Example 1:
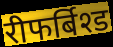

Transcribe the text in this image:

रीफर्बिश्ड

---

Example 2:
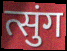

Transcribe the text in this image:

त्सुंग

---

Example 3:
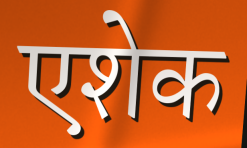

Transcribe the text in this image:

एशेक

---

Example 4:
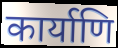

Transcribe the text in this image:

कार्याणि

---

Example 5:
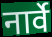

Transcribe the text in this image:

नार्वे